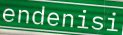
endenisi